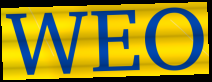
WEO